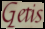
Getis